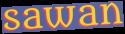
sawan